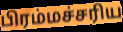
பிரம்மச்சரிய